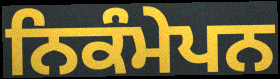
ਨਿਕੰਮੇਪਨ